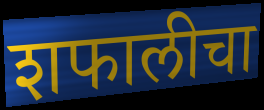
शफालीचा